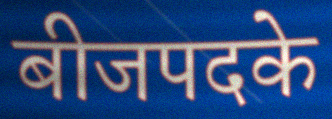
बीजपदके